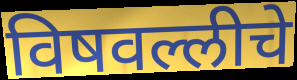
विषवल्लीचे